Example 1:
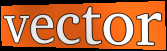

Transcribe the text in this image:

vector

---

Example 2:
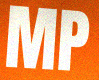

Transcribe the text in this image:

MP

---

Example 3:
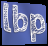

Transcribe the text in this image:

lbp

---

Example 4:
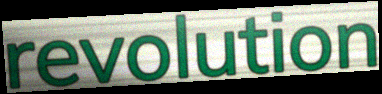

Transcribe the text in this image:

revolution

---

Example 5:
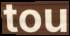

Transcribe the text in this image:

tou